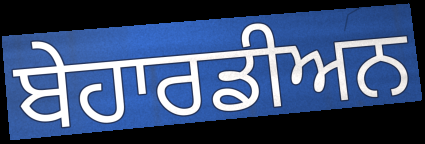
ਬੇਹਾਰਡੀਅਨ